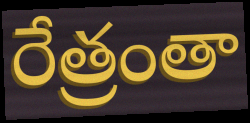
రేత్రంతా